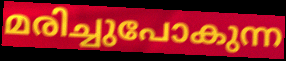
മരിച്ചുപോകുന്ന